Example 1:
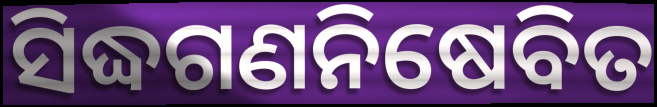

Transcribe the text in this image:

ସିଦ୍ଧଗଣନିଷେବିତ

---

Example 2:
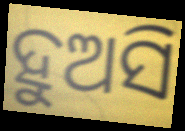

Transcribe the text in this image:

ହୁଅସି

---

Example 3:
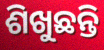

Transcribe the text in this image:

ଶିଖୁଛନ୍ତି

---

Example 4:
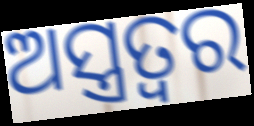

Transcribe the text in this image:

ଅସ୍ତ୍ରତ୍ୱର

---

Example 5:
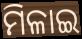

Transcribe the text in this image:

ମିଳାଇ